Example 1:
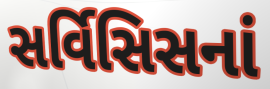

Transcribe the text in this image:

સર્વિસિસનાં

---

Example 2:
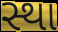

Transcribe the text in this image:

સ્થા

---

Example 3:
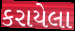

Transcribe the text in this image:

કરાયેલા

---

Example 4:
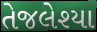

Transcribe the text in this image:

તેજલેશ્યા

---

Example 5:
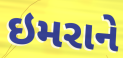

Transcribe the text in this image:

ઇમરાને